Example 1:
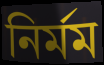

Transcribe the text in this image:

নির্মম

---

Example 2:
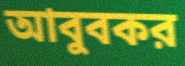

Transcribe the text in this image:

আবুবকর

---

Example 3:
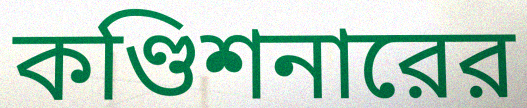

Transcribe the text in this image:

কণ্ডিশনারের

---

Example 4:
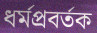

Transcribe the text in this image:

ধর্মপ্রবর্তক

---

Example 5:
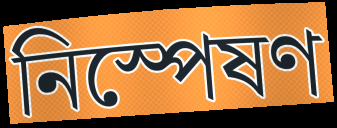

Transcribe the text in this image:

নিস্পেষণ